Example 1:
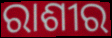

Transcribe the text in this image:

ରାଶୀର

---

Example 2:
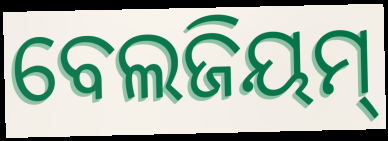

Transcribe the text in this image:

ବେଲଜିୟମ୍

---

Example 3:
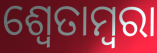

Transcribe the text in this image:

ଶ୍ୱେତାମ୍ବରା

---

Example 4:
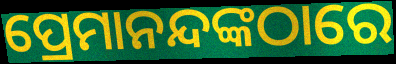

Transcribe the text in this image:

ପ୍ରେମାନନ୍ଦଙ୍କଠାରେ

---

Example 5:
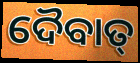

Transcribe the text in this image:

ଦୈବାତ୍